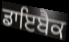
ਡਾਇਬੈਕ